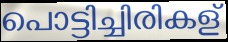
പൊട്ടിച്ചിരികള്